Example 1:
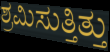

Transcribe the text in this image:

ಶ್ರಮಿಸುತ್ತಿತ್ತು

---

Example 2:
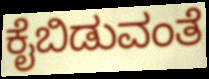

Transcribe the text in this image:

ಕೈಬಿಡುವಂತೆ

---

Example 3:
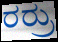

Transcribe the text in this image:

ರರ್ರು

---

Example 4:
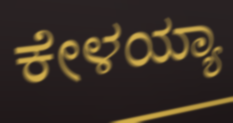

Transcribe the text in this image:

ಕೇಳಯ್ಯಾ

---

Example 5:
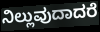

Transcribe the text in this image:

ನಿಲ್ಲುವುದಾದರೆ